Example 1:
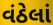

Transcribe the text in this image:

વંઠેલાં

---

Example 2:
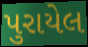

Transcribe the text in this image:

પુરાયેલ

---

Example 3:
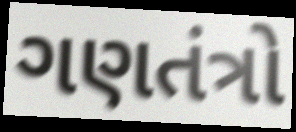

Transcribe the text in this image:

ગણતંત્રો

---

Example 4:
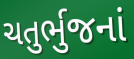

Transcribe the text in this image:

ચતુર્ભુજનાં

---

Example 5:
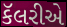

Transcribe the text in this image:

કૅલરીએ